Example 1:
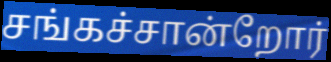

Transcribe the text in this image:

சங்கச்சான்றோர்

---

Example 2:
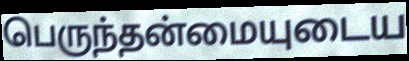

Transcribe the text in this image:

பெருந்தன்மையுடைய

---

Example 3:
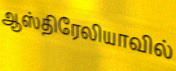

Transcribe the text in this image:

ஆஸ்திரேலியாவில்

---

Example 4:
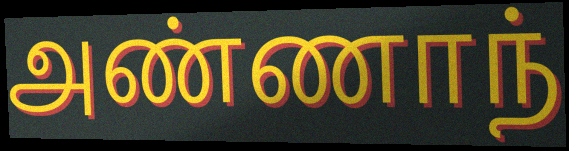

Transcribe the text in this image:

அண்ணாந்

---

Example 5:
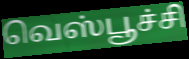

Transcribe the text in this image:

வெஸ்பூச்சி